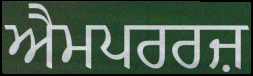
ਐਮਪਰਰਜ਼